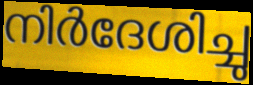
നിർദേശിച്ചു